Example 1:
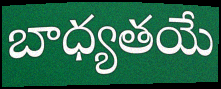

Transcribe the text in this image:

బాధ్యతయే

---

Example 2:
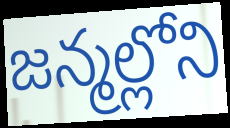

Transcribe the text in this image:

జన్మల్లోని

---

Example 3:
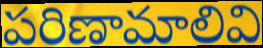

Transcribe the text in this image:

పరిణామాలివి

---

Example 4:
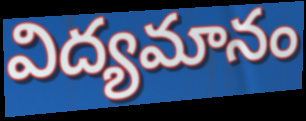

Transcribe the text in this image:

విద్యమానం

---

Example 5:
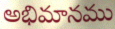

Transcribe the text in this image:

అభిమానము